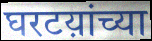
घरटय़ांच्या